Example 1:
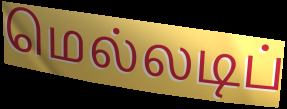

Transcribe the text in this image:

மெல்லடிப்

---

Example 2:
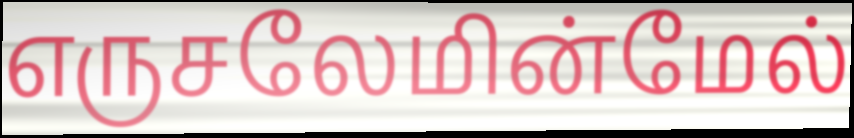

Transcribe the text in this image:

எருசலேமின்மேல்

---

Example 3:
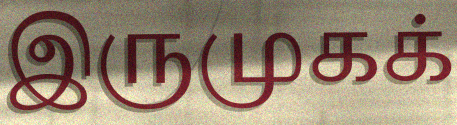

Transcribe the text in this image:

இருமுகக்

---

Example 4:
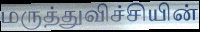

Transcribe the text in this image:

மருத்துவிச்சியின்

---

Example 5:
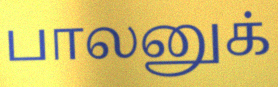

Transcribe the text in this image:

பாலனுக்